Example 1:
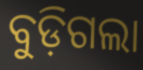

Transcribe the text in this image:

ବୁଡ଼ିଗଲା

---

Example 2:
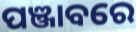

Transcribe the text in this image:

ପଞ୍ଜାବରେ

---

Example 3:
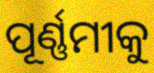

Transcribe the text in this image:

ପୂର୍ଣ୍ଣମୀକୁ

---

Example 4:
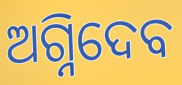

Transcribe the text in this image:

ଅଗ୍ନିଦେବ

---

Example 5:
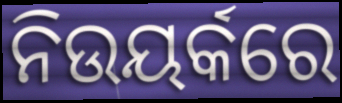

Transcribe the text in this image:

ନିଉୟର୍କରେ